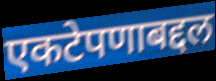
एकटेपणाबद्दल